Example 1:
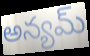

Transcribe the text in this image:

అన్యమ్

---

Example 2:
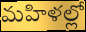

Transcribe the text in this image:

మహిళల్లో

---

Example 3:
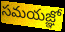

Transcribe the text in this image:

సమయజ్ఞో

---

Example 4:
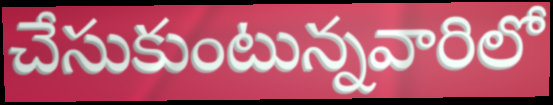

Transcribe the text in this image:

చేసుకుంటున్నవారిలో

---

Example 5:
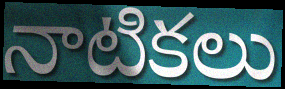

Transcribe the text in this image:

నాటికలు